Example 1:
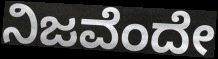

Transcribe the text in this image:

ನಿಜವೆಂದೇ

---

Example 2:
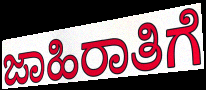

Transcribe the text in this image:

ಜಾಹಿರಾತಿಗೆ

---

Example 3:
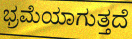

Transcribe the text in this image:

ಭ್ರಮೆಯಾಗುತ್ತದೆ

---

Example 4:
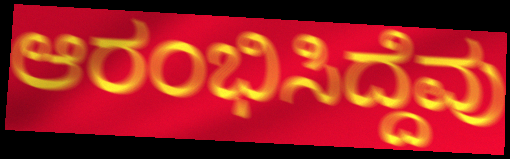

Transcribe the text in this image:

ಆರಂಭಿಸಿದ್ದೆವು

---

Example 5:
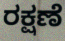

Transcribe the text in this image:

ರಕ್ಷಣೆ